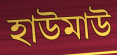
হাউমাউ